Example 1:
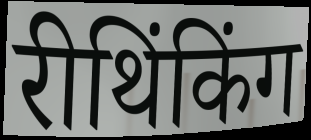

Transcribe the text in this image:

रीथिंकिंग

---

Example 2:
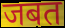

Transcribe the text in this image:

जबत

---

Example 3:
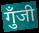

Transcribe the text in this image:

गुँजी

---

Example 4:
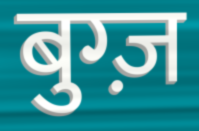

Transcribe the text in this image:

बुग्ज़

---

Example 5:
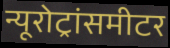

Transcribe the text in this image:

न्यूरोट्रांसमीटर